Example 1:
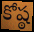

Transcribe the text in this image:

కోష్ఠ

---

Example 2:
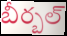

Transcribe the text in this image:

బీర్బల్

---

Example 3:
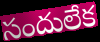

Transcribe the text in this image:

సందులేక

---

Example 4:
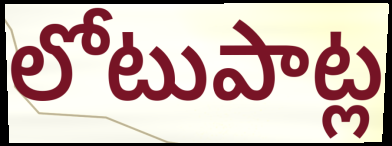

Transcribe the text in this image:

లోటుపాట్ల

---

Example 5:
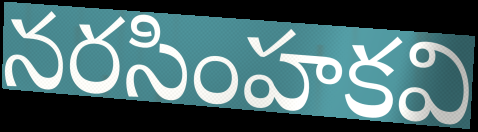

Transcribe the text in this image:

నరసింహకవి